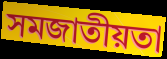
সমজাতীয়তা